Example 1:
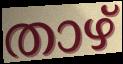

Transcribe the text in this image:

താഴ്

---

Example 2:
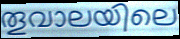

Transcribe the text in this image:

തൂവാലയിലെ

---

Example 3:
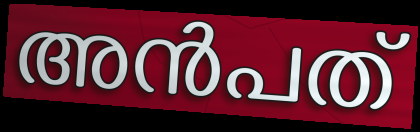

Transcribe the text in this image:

അൻപത്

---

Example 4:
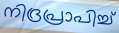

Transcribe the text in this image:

നിദ്രപ്രാപിച്ച്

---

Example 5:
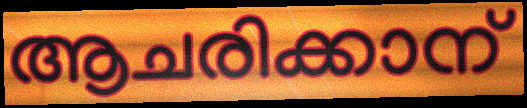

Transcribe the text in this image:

ആചരിക്കാന്